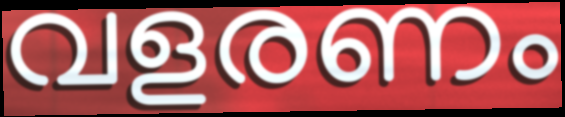
വളരണം